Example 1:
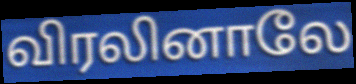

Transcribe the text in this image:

விரலினாலே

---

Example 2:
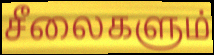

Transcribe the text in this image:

சீலைகளும்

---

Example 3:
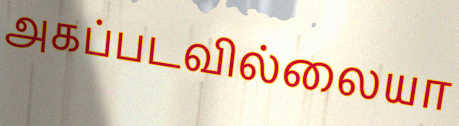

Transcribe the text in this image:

அகப்படவில்லையா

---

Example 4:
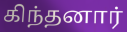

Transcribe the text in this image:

கிந்தனார்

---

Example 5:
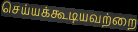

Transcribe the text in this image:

செய்யக்கூடியவற்றை